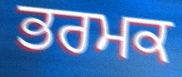
ਭਰਮਕ